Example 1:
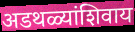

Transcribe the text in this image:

अडथळ्यांशिवाय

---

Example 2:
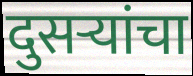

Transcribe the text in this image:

दुसऱ्यांचा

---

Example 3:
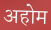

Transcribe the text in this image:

अहोम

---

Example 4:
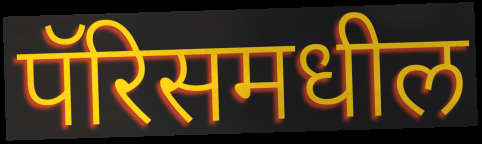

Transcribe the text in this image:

पॅरिसमधील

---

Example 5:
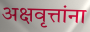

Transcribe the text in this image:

अक्षवृत्तांना